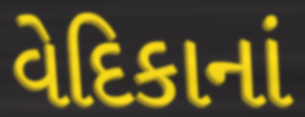
વેદિકાનાં